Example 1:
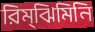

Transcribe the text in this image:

রিম্‌ঝিমিনি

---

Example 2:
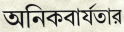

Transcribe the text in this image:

অনিকবার্যতার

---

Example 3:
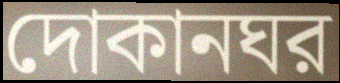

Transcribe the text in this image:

দোকানঘর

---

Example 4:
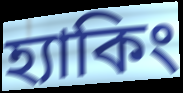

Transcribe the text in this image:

হ্যাকিং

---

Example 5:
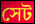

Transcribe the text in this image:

সেট